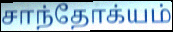
சாந்தோக்யம்